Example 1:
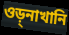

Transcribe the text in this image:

ওড়্নাখানি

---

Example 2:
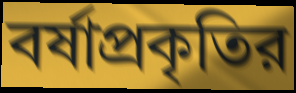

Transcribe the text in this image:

বর্ষাপ্রকৃতির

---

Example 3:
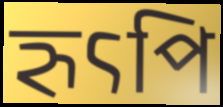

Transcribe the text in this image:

হৃৎপি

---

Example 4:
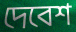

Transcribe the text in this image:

দেবেশ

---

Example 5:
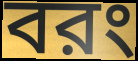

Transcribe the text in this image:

বরং